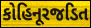
કોહિનૂરજડિત